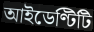
আইডেণ্টিটি